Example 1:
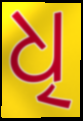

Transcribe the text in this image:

ଧି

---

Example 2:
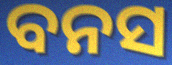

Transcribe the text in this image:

ବନସ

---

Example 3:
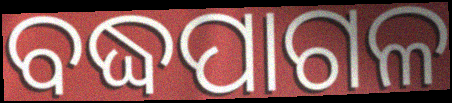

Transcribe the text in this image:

ବଦ୍ଧପାଗଳ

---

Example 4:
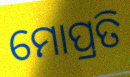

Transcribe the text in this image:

ମୋପ୍ରତି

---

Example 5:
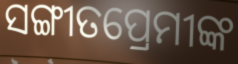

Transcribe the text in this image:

ସଙ୍ଗୀତପ୍ରେମୀଙ୍କ